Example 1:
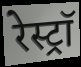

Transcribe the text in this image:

रेस्ट्रॉ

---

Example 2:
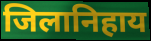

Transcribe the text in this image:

जिलानिहाय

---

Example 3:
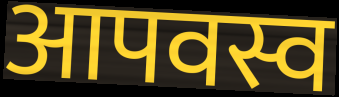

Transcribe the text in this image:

आपवस्व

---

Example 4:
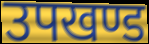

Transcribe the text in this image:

उपखण्ड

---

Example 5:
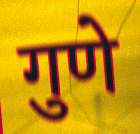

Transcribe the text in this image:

गुणे